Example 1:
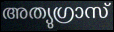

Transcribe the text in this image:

അത്യുഗ്രാസ്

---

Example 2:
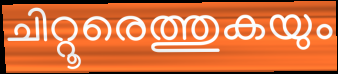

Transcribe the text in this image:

ചിറ്റൂരെത്തുകയും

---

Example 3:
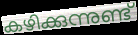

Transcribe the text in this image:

കഴിക്കുന്നുണ്ട്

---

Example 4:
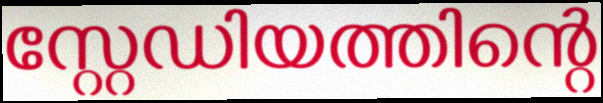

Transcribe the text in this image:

സ്റ്റേഡിയത്തിന്റെ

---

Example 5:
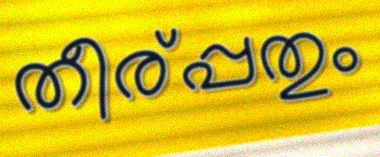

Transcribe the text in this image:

തീര്പ്പതും